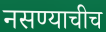
नसण्याचीच